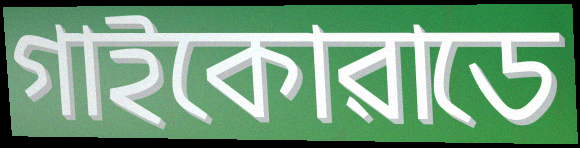
গাইকোৱাডে